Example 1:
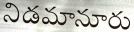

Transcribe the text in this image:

నిడమానూరు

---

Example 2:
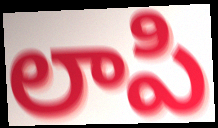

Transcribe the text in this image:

లాపి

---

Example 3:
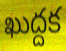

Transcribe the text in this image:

ఖుద్దక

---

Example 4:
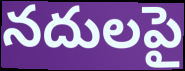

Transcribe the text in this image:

నదులపై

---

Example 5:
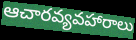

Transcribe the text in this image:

ఆచారవ్యవహారాలు